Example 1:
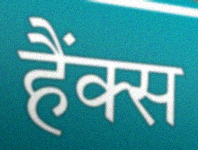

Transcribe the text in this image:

हैंक्‍स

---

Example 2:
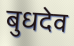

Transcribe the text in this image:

बुधदेव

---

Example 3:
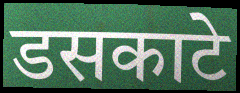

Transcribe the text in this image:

डसकाटे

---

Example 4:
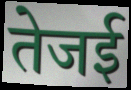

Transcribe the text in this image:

तेजई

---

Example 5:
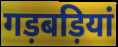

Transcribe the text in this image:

गड़बड़ियां